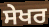
ਸੇਖਰ